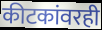
कीटकांवरही